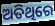
ଅତିଥିରେ